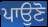
ਪਾਉਣੋ